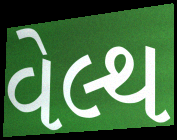
વેલ્થ